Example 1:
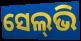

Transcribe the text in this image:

ସେଲ୍‌ଭି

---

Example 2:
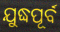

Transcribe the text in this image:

ଯୁଦ୍ଧପୂର୍ବ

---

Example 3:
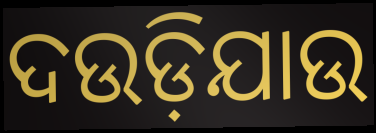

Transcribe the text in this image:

ଦଉଡ଼ିଯାଉ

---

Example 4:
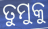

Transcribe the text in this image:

ତୁମୁକୁ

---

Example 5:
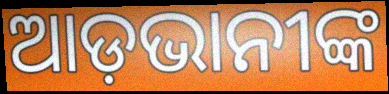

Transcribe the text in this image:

ଆଡ଼ଭାନୀଙ୍କ